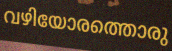
വഴിയോരത്തൊരു